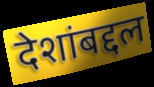
देशांबद्दल